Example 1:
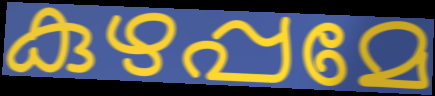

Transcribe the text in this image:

കുഴപ്പമേ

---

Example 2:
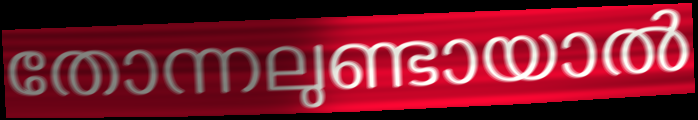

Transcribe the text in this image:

തോന്നലുണ്ടായാൽ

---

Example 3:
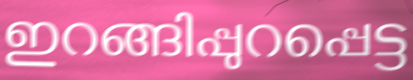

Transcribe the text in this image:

ഇറങ്ങിപ്പുറപ്പെട്ട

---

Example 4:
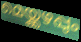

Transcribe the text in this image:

മെയ്ക്കഴപ്പും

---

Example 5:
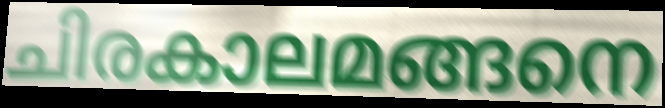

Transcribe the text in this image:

ചിരകാലമങ്ങനെ